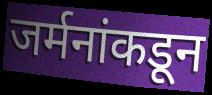
जर्मनांकडून